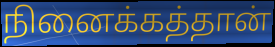
நினைக்கத்தான்